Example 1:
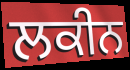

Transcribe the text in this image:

ਲਕੀਨ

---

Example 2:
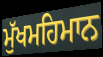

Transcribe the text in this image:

ਮੁੱਖਮਹਿਮਾਨ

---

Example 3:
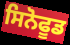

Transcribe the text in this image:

ਸਿਨੋਫੂਡ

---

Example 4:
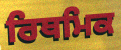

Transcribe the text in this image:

ਰਿਥਮਿਕ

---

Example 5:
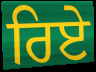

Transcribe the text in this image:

ਰਿਏ